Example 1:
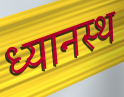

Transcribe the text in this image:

ध्यानस्थ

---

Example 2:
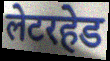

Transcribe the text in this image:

लेटरहेड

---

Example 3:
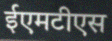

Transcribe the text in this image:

ईएमटीएस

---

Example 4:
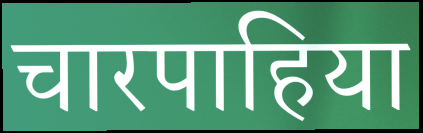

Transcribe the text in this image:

चारपाहिया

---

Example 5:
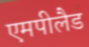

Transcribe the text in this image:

एमपीलैड